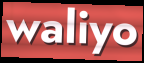
waliyo